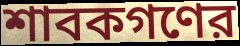
শাবকগণের